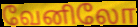
வேனிலோ